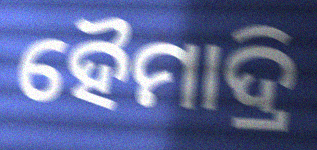
ହୈମାଦ୍ରି